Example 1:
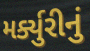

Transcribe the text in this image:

મર્ક્યુરીનું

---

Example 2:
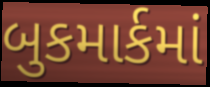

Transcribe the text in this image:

બુકમાર્કમાં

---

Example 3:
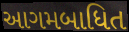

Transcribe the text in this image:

આગમબાધિત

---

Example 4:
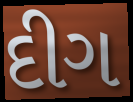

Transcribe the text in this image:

દીગ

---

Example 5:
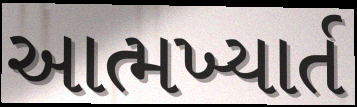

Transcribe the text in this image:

આત્મખ્યાર્ત